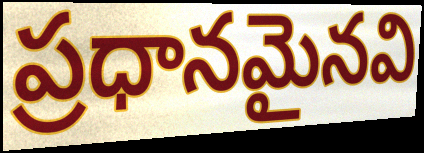
ప్రధానమైనవి